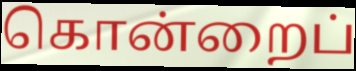
கொன்றைப்